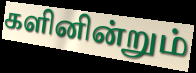
களினின்றும்